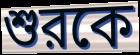
শুরকে